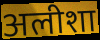
अलीशा